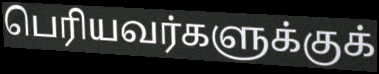
பெரியவர்களுக்குக்